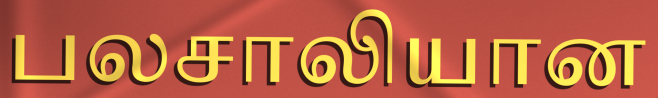
பலசாலியான